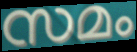
സമം